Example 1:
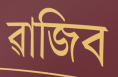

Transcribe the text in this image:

ৱাজিব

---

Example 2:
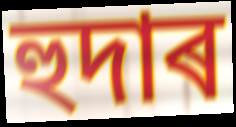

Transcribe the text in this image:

হুদাৰ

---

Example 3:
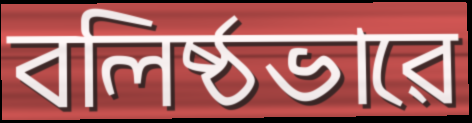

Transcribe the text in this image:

বলিষ্ঠভাৱে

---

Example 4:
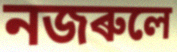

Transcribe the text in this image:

নজৰুলে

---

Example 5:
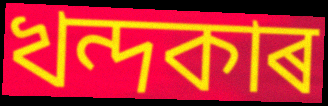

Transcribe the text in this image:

খন্দকাৰ